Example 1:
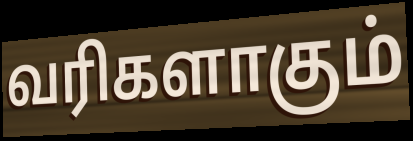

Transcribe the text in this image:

வரிகளாகும்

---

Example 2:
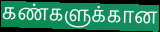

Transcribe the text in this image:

கண்களுக்கான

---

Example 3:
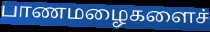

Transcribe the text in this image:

பாணமழைகளைச்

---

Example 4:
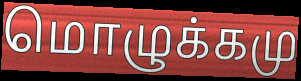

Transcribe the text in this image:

மொழுக்கமு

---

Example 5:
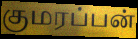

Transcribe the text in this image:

குமரப்பன்